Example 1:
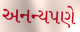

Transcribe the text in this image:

અનન્યપણે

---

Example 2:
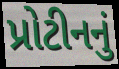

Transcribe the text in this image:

પ્રોટીનનું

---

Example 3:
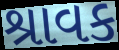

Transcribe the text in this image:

શ્રાવક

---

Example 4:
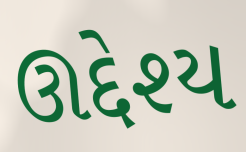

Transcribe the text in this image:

ઊદ્દેશ્ય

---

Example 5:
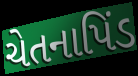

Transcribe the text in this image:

ચેતનાપિંડ